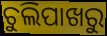
ଚୁଲିପାଖରୁ